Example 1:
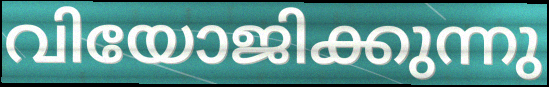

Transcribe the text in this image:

വിയോജിക്കുന്നു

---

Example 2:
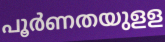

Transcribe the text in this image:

പൂർണതയുളള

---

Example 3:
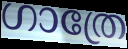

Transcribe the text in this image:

ഗാത്രേ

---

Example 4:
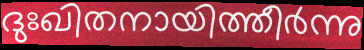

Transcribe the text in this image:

ദുഃഖിതനായിത്തീർന്നു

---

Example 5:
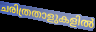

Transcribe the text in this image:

ചരിത്രതാളുകളിൽ